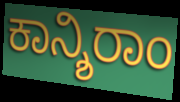
ಕಾನ್ಶಿರಾಂ